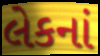
લેકનાં